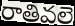
రాతివలె